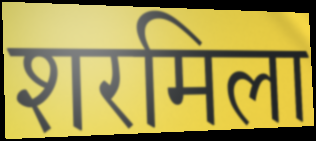
शरमिला